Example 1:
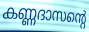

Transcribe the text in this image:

കണ്ണദാസന്റെ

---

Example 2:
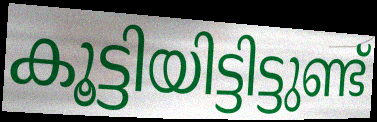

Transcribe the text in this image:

കൂട്ടിയിട്ടിട്ടുണ്ട്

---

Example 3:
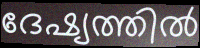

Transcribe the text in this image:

ദേഷ്യത്തിൽ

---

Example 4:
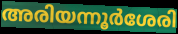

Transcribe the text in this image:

അരിയന്നൂർശേരി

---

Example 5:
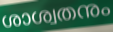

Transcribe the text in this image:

ശാശ്വതനും